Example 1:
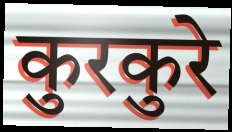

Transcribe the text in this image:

कुरकुरे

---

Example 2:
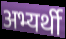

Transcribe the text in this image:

अभ्यर्थी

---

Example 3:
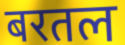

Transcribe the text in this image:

बरतल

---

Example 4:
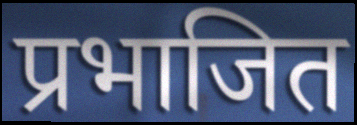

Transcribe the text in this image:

प्रभाजित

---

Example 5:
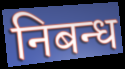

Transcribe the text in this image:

निबन्ध